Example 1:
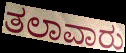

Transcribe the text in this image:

ತಲಾವಾರು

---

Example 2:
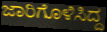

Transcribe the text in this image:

ಜಾರಿಗೊಳಿಸಿದ್ದ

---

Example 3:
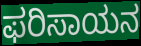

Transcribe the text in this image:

ಫರಿಸಾಯನ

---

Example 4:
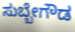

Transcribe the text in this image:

ಸುಬ್ಬೇಗೌಡ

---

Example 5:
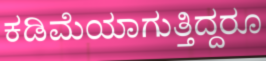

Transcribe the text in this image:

ಕಡಿಮೆಯಾಗುತ್ತಿದ್ದರೂ